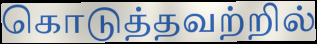
கொடுத்தவற்றில்